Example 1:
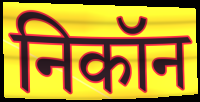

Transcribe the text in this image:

निकॉन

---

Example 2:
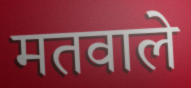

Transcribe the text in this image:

मतवाले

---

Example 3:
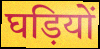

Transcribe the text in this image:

घड़ियों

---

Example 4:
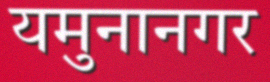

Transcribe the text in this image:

यमुनानगर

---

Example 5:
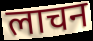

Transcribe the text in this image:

लाचन